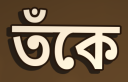
তঁকে